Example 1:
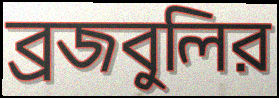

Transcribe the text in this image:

ব্রজবুলির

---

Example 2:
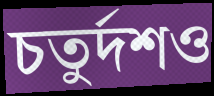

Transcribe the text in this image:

চতুর্দশও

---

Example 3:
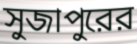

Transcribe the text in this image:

সুজাপুরের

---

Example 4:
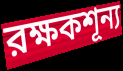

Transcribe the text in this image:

রক্ষকশূন্য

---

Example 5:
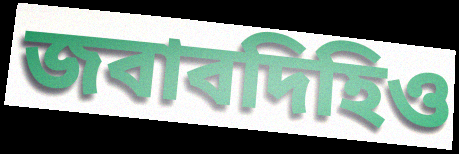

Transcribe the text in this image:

জবাবদিহিও